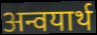
अन्वयार्थ